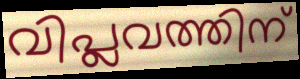
വിപ്ലവത്തിന്